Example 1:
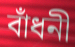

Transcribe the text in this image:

বাঁধনী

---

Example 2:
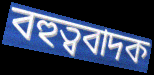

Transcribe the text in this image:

বহুত্ববাদক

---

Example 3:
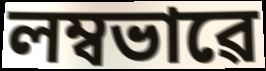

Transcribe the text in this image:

লম্বভাৱে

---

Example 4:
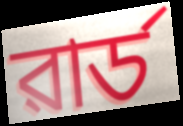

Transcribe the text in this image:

ৱাৰ্ড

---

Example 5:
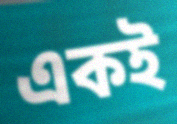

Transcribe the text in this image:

একই